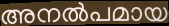
അനൽപമായ